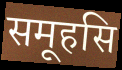
समूहसि